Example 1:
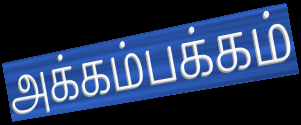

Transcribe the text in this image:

அக்கம்பக்கம்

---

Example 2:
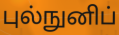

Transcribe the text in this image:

புல்நுனிப்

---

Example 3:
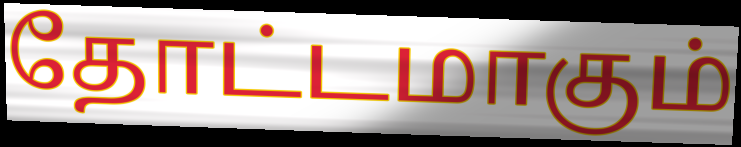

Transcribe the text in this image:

தோட்டமாகும்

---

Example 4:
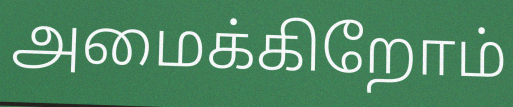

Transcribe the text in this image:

அமைக்கிறோம்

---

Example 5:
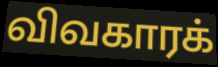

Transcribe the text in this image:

விவகாரக்